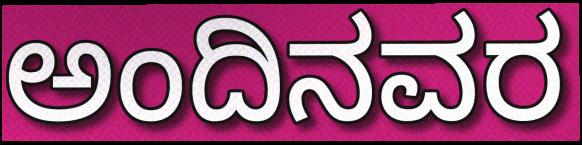
ಅಂದಿನವರ